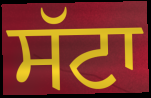
ਸੱਟਾ